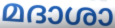
മദാശാ